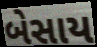
બેસાય